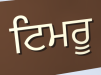
ਟਿਮਰੂ